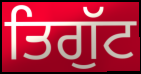
ਤਿਗੁੱਟ